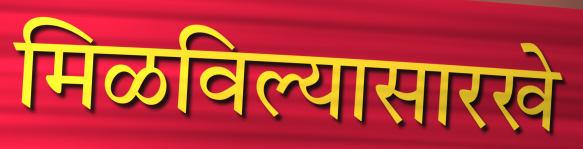
मिळविल्यासारखे